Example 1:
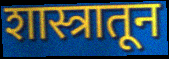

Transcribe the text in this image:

शास्त्रातून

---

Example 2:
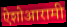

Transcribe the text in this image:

ऐशोआरामी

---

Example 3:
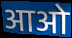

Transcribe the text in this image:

आओ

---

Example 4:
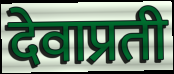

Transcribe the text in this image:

देवाप्रती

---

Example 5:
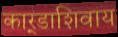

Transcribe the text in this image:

कार्डाशिवाय